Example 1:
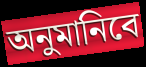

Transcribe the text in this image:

অনুমানিবে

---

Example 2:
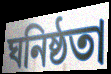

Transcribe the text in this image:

ঘনিষ্ঠতা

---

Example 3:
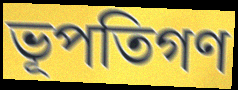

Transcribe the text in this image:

ভূপতিগণ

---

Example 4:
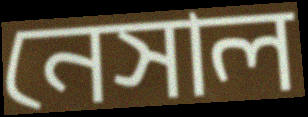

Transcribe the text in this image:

নেসাল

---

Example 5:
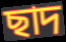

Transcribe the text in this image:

ছাদ